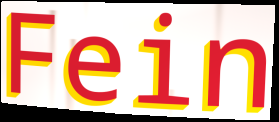
Fein